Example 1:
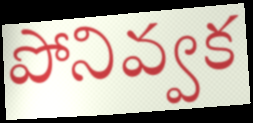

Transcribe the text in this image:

పోనివ్వక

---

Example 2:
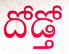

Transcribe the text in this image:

దోడ్తో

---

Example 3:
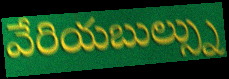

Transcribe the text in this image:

వేరియబుల్స్ను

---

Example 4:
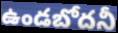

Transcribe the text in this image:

ఉండబోదనీ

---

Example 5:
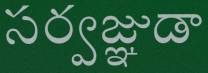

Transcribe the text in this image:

సర్వజ్ఞుడా